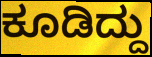
ಕೂಡಿದ್ದು